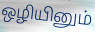
ஒழியினும்